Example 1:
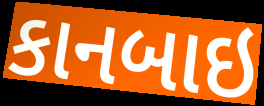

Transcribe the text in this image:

કાનબાઇ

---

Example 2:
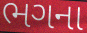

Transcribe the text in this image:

ભગના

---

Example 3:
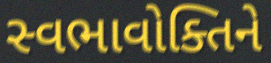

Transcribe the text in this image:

સ્વભાવોક્તિને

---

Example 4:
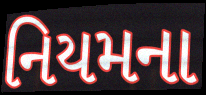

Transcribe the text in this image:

નિયમના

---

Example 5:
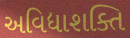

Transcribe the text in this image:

અવિદ્યાશક્તિ